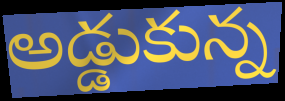
అడ్డుకున్న